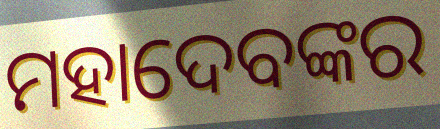
ମହାଦେବଙ୍କର